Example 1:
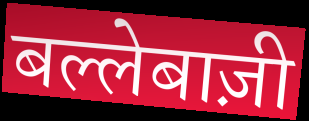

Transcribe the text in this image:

बल्‍लेबाज़ी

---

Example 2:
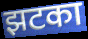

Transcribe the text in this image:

झटका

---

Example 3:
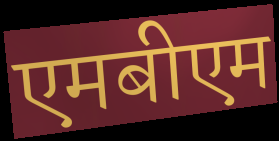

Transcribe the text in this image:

एमबीएम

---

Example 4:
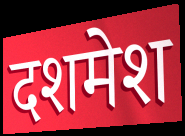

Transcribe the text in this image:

दशमेश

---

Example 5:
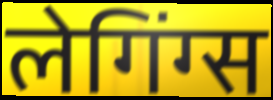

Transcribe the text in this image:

लेगिंग्स